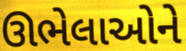
ઊભેલાઓને